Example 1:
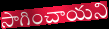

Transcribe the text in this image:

సాగించాయని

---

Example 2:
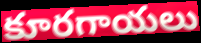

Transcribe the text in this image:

కూరగాయలు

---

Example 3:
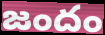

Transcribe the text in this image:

జందం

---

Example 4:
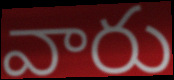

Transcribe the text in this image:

వారు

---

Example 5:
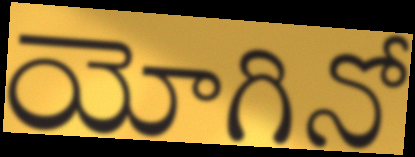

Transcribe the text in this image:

యోగినో